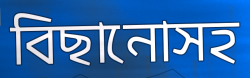
বিছানোসহ